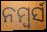
ନମ୍ୱର୍ସ